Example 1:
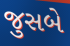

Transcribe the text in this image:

જુસબે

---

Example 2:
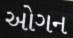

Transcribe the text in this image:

ઓગન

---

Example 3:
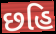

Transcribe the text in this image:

છહિ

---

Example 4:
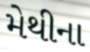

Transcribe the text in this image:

મેથીના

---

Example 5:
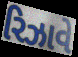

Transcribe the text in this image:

રિઝાવે